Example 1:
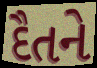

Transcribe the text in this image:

દૈતને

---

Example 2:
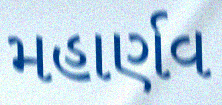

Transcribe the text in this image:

મહાર્ણવ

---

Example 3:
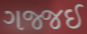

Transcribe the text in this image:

ગજ્જઈ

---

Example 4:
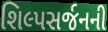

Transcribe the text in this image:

શિલ્પસર્જનની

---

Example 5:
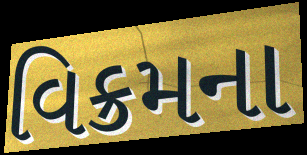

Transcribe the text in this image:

વિક્રમના